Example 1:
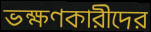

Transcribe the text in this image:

ভক্ষণকারীদের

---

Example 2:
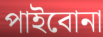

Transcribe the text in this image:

পাইবোনা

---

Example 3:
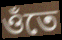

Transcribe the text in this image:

ওঁতে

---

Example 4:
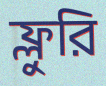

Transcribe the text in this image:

ফ্লুরি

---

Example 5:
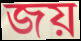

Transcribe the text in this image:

জয়